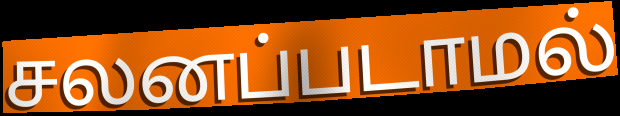
சலனப்படாமல்